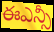
ఈఎన్సీ